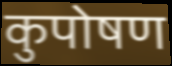
कुपोषण